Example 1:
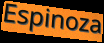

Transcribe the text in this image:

Espinoza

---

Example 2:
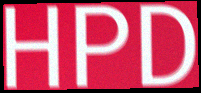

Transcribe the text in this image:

HPD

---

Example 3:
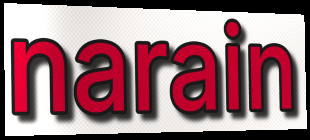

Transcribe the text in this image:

narain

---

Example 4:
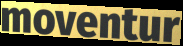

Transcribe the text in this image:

moventur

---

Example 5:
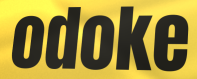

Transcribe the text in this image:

odoke